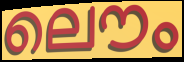
ലൌം